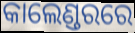
କାଲେଣ୍ଡରରେ